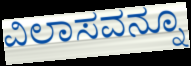
ವಿಲಾಸವನ್ನೂ